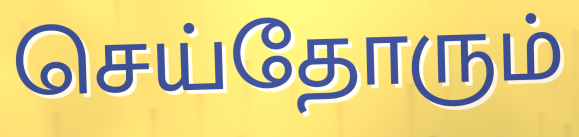
செய்தோரும்